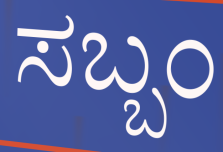
ಸಬ್ಬಂ